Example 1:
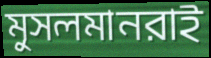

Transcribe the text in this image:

মুসলমানরাই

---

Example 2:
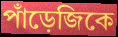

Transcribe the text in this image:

পাঁড়েজিকে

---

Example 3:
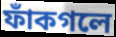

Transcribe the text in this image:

ফাঁকগলে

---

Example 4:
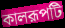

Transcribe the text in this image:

কালরূপটি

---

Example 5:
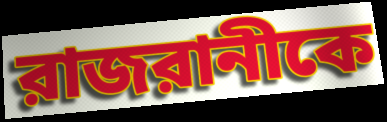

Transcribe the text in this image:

রাজরানীকে